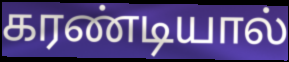
கரண்டியால்